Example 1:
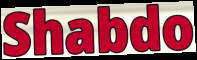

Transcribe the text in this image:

Shabdo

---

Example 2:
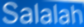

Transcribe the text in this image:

Salalah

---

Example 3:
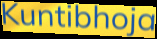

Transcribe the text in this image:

Kuntibhoja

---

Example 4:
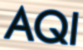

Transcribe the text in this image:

AQI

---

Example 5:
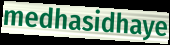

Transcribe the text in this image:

medhasidhaye